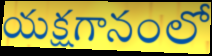
యక్షగానంలో